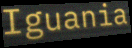
Iguania